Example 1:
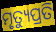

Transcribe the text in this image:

ମୃତ୍ୟୁପ୍ରତି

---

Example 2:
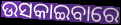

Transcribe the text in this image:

ଉସକାଇବାରେ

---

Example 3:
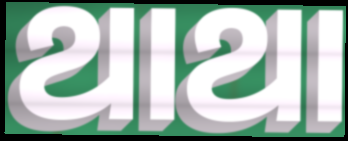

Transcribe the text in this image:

ଥାଥା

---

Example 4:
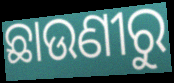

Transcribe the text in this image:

ଛାଉଣୀରୁ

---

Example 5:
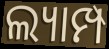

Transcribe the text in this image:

ଲ୍ୟାମ୍ପ